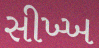
સીખ્ખ